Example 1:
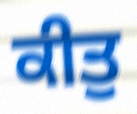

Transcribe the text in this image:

ਕੀਤੁ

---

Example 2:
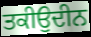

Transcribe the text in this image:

ਤਕੀਉਦੀਨ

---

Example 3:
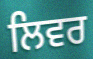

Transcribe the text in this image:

ਲਿਵਰ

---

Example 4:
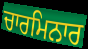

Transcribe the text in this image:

ਚਾਰਮਿਨਾਰ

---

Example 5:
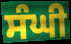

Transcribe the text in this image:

ਸੰਘੀ